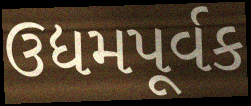
ઉદ્યમપૂર્વક